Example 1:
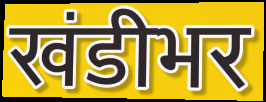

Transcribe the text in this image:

खंडीभर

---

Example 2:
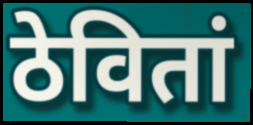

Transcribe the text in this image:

ठेवितां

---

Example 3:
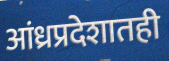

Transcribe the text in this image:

आंध्रप्रदेशातही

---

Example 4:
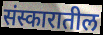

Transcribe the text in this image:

संस्कारातील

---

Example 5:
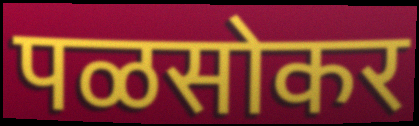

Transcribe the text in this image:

पळसोकर